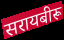
सरायबीरू